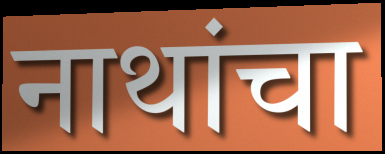
नाथांचा